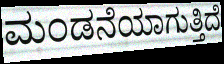
ಮಂಡನೆಯಾಗುತ್ತಿದೆ